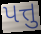
પત્તુ